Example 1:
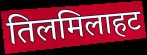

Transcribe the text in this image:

तिलमिलाहट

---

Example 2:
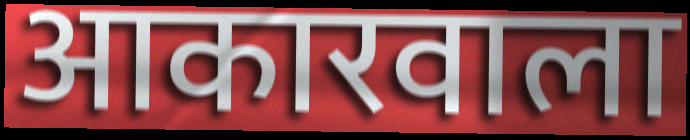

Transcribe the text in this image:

आकारवाला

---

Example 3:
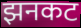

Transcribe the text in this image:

झनकट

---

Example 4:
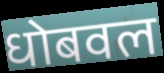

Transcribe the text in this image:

धोबवल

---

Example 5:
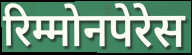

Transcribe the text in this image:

रिम्मोनपेरेस